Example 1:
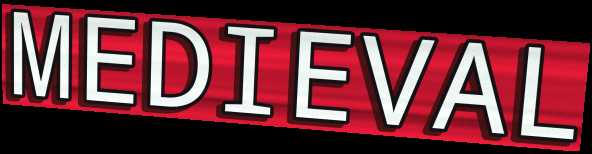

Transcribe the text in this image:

MEDIEVAL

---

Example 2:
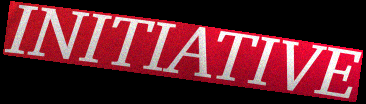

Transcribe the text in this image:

INITIATIVE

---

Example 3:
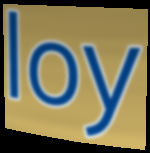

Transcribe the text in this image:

loy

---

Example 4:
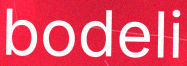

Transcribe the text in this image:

bodeli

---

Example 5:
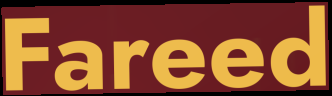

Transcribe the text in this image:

Fareed